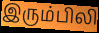
இரும்பிலி